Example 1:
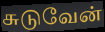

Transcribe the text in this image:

சுடுவேன்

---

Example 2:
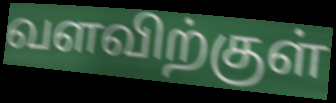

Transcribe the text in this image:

வளவிற்குள்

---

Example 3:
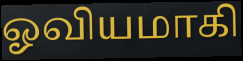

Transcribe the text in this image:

ஓவியமாகி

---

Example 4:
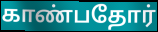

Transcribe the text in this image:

காண்பதோர்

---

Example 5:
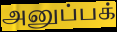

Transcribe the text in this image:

அனுப்பக்